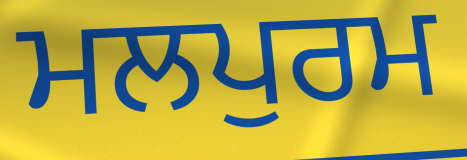
ਮਲਪੁਰਮ